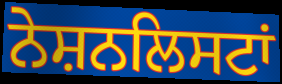
ਨੇਸ਼ਨਲਿਸਟਾਂ